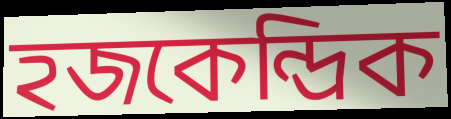
হজকেন্দ্রিক